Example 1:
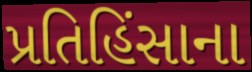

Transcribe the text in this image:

પ્રતિહિંસાના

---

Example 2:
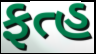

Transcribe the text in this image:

ફત્હ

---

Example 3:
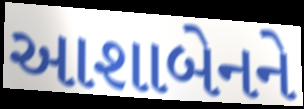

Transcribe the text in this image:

આશાબેનને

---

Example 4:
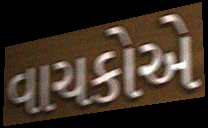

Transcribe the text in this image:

વાચકોએ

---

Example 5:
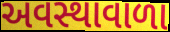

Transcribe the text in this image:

અવસ્થાવાળા